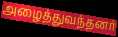
அழைத்துவந்தனர்